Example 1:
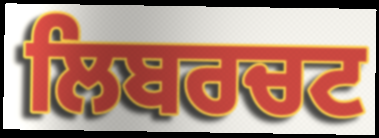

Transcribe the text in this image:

ਲਿਬਰਚਟ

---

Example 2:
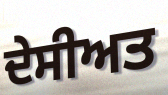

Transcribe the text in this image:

ਦੇਸੀਅਤ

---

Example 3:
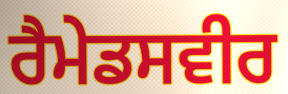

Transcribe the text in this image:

ਰੈਮੇਡਸਵੀਰ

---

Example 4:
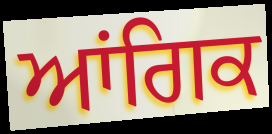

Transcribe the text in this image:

ਆਂਗਿਕ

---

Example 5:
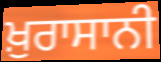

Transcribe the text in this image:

ਖ਼ੁਰਾਸਾਨੀ